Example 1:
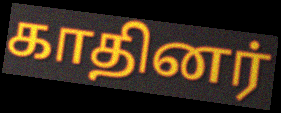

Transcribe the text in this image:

காதினர்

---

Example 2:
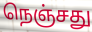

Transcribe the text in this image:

நெஞ்சது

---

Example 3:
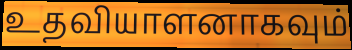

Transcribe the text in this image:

உதவியாளனாகவும்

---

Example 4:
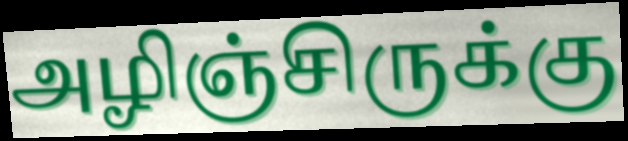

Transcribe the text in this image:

அழிஞ்சிருக்கு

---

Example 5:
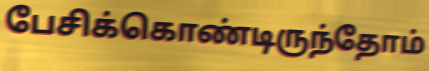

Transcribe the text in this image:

பேசிக்கொண்டிருந்தோம்